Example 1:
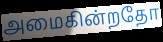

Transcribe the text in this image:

அமைகின்றதோ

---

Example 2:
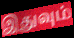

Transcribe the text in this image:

இதுவும்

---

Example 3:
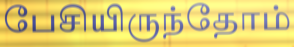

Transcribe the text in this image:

பேசியிருந்தோம்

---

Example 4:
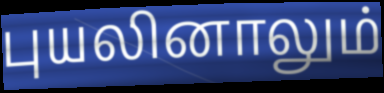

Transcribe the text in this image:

புயலினாலும்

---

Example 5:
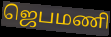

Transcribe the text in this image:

ஜெபமணி